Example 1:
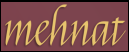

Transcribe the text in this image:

mehnat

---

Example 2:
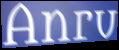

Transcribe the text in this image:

Anru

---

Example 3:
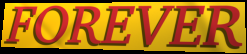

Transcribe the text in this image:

FOREVER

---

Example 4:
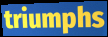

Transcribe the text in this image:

triumphs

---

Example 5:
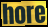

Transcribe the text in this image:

hore